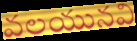
వలయునవి